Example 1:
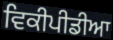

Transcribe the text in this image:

ਵਿਕੀਪੀਡੀਆ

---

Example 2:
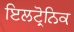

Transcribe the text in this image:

ਇਲਟ੍ਰੋਨਿਕ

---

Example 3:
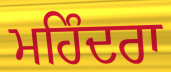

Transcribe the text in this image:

ਮਹਿੰਦਰਾ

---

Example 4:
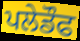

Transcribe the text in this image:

ਪਲੇਡੌਫ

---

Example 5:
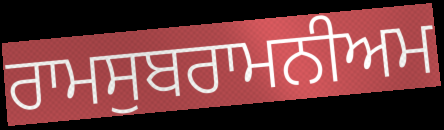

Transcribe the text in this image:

ਰਾਮਸੁਬਰਾਮਨੀਅਮ